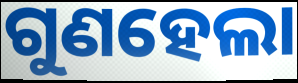
ଗୁଣହେଲା